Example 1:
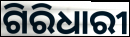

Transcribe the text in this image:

ଗିରିଧାରୀ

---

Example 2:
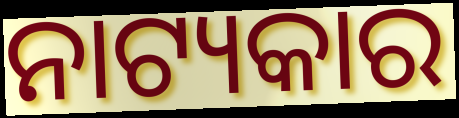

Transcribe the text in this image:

ନାଟ୍ୟକାର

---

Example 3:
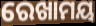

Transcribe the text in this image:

ରେଖାମୟ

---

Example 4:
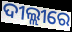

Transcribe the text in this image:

ଦୀଲ୍ଲୀରେ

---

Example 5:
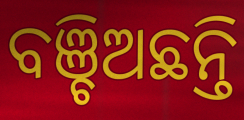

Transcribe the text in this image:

ବଞ୍ଚିଅଛନ୍ତି